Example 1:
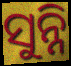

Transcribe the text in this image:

ସୁନ୍ନି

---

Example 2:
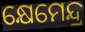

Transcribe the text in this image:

କ୍ଷେମେନ୍ଦ୍ର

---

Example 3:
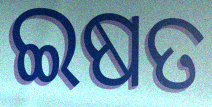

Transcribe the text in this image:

ଇଷତ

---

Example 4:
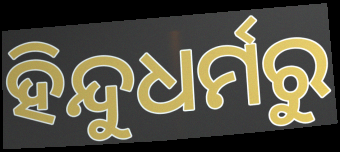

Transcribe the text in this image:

ହିନ୍ଦୁଧର୍ମରୁ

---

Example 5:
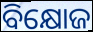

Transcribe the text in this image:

ବିକ୍ଷୋଜ